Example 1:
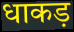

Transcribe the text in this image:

धाकड़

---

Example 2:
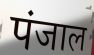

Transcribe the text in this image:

पंजाल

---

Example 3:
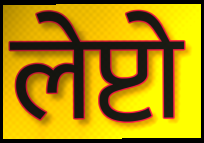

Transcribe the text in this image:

लेप्टो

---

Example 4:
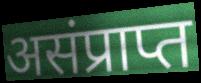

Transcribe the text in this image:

असंप्राप्त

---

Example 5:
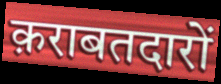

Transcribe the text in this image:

क़राबतदारों